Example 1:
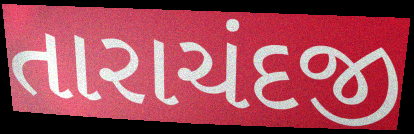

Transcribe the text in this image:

તારાચંદજી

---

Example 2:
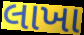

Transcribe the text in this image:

લાખા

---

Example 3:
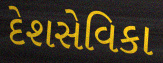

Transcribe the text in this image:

દેશસેવિકા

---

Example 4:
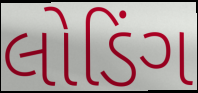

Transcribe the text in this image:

લોડિંગ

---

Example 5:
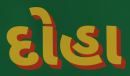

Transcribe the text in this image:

દોહા